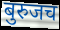
बुरुजच